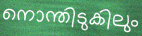
നൊന്തിടുകിലും